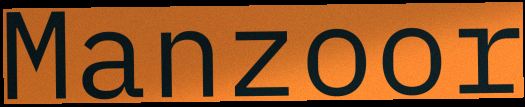
Manzoor